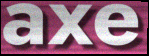
axe